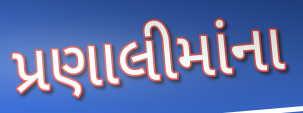
પ્રણાલીમાંના